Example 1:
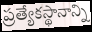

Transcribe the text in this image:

ప్రత్యేకస్థానాన్ని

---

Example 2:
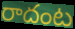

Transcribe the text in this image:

రాదంట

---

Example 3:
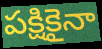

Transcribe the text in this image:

పక్షికైనా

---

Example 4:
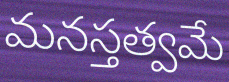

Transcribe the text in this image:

మనస్తత్వమే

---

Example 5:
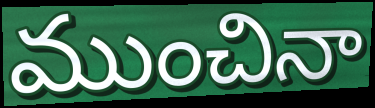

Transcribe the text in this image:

ముంచినా